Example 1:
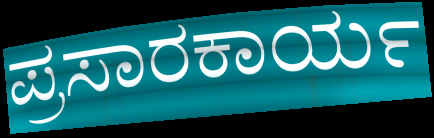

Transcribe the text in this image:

ಪ್ರಸಾರಕಾರ್ಯ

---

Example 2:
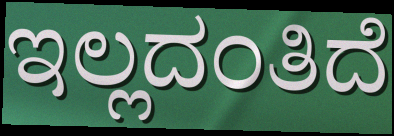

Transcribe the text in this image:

ಇಲ್ಲದಂತಿದೆ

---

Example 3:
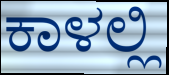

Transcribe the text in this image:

ಕಾಳಲ್ಲಿ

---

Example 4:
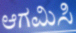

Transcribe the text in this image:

ಆಗಮಿಸಿ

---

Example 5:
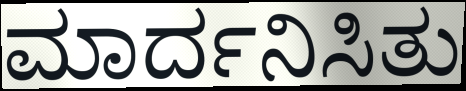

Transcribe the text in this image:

ಮಾರ್ದನಿಸಿತು